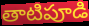
తాటిపూడి